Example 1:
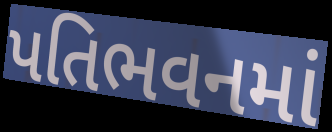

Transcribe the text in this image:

પતિભવનમાં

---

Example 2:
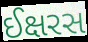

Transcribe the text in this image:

ઈક્ષરસ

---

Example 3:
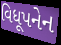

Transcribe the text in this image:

વિધૂપનેન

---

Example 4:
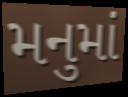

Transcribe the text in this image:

મનુમાં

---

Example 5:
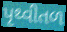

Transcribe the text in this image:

પૃથ્વીતળ